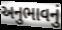
અનુભાવનું